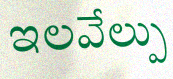
ఇలవేల్పు